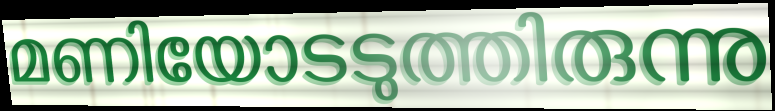
മണിയോടടുത്തിരുന്നു